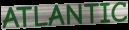
ATLANTIC